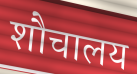
शौचालय